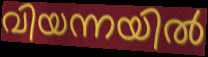
വിയന്നയിൽ